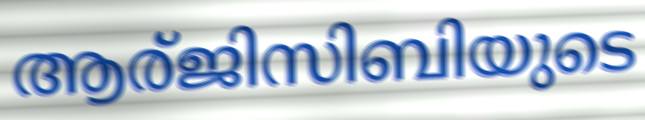
ആര്ജിസിബിയുടെ